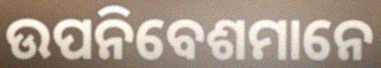
ଉପନିବେଶମାନେ